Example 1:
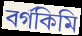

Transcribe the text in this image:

বৰ্গকিমি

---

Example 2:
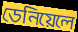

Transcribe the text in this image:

ডেনিয়েলে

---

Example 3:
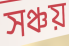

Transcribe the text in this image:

সঞ্চয়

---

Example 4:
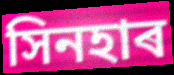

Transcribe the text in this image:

সিনহাৰ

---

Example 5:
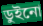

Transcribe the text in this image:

ডুইনো